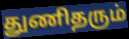
துணிதரும்